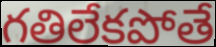
గతిలేకపోతే